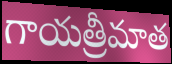
గాయత్రీమాత